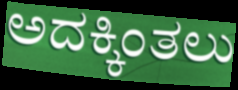
ಅದಕ್ಕಿಂತಲು